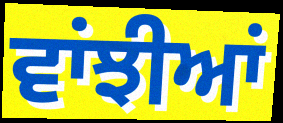
ਵਾਂਝੀਆਂ